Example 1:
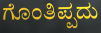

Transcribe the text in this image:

ಗೊಂತಿಪ್ಪದು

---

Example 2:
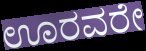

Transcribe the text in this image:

ಊರವರೇ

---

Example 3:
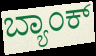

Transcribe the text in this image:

ಬ್ಯಾಂಕ್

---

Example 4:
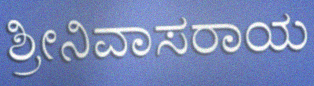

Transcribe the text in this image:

ಶ್ರೀನಿವಾಸರಾಯ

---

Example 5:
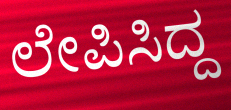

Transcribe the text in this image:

ಲೇಪಿಸಿದ್ದ